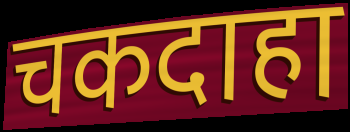
चकदाहा